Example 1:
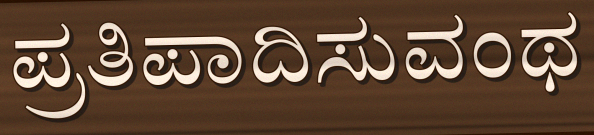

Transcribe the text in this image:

ಪ್ರತಿಪಾದಿಸುವಂಥ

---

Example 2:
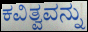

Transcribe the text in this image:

ಕವಿತ್ವವನ್ನು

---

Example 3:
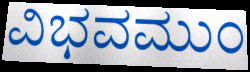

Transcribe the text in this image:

ವಿಭವಮುಂ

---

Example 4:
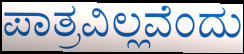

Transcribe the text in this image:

ಪಾತ್ರವಿಲ್ಲವೆಂದು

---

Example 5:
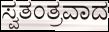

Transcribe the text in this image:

ಸ್ವತಂತ್ರವಾದ